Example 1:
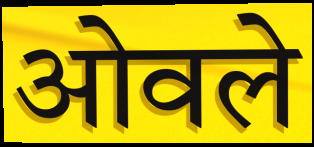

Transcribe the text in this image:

ओवले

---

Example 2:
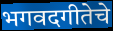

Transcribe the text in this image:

भगवदगीतेचे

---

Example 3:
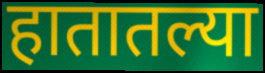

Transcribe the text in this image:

हातातल्या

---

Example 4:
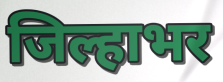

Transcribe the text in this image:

जिल्हाभर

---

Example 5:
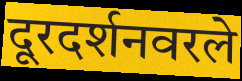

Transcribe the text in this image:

दूरदर्शनवरले